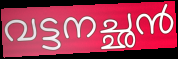
വട്ടനച്ഛൻ